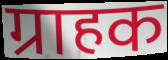
ग्राहक